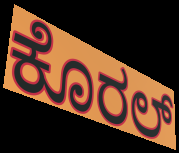
ಕೊರಲ್